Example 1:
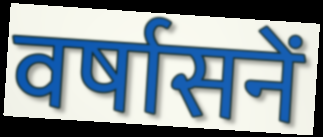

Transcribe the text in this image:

वर्षासनें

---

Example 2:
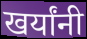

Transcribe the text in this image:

खर्यांनी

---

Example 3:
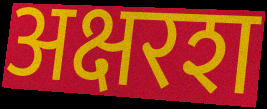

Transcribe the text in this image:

अक्षरश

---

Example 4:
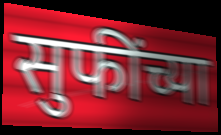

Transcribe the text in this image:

सुफींच्या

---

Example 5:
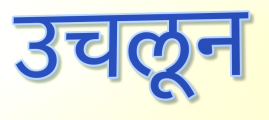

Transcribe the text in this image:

उचलून